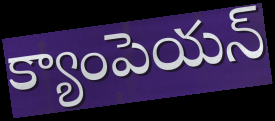
క్యాంపెయన్